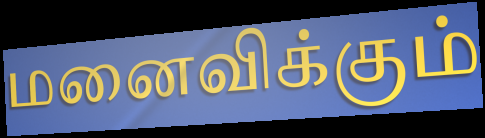
மனைவிக்கும்